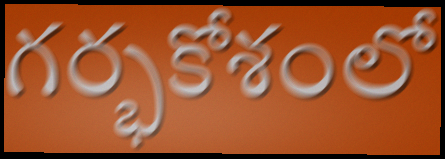
గర్భకోశంలో